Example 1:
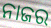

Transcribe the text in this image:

ନାଜର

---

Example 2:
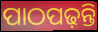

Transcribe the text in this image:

ପାଠପଢ଼ନ୍ତି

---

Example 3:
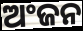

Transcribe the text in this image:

ଅଂଜନ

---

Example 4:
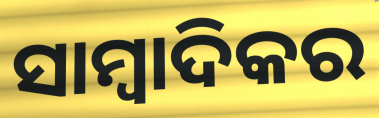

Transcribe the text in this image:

ସାମ୍ବାଦିକର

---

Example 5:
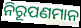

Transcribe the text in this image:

ନିରୂପଣମାନ